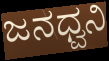
ಜನಧ್ವನಿ